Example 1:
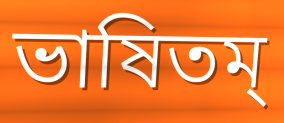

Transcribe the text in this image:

ভাষিতম্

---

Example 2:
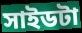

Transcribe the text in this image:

সাইডটা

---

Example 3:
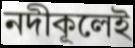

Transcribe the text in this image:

নদীকূলেই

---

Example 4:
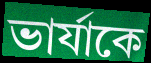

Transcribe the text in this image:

ভার্যাকে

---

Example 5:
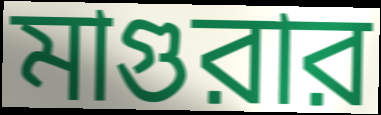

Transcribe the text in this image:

মাগুরার